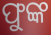
ଫୁଙ୍କ